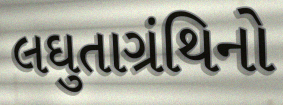
લઘુતાગ્રંથિનો